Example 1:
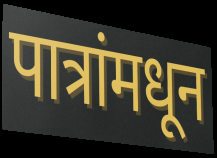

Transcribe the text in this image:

पात्रांमधून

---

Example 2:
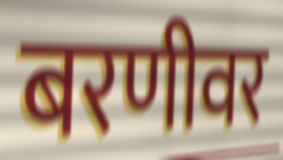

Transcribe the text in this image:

बरणीवर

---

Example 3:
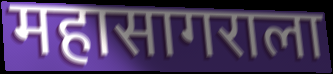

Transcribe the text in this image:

महासागराला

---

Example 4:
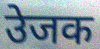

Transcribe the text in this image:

उेजक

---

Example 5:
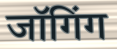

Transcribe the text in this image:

जॉगिंग